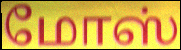
மோஸ்